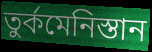
তুৰ্কমেনিস্তান